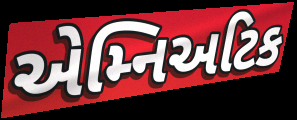
એમ્નિઅટિક